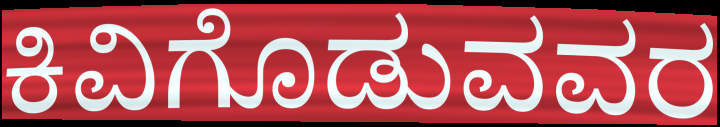
ಕಿವಿಗೊಡುವವರ